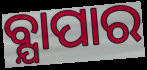
ବ୍ଯାପାର